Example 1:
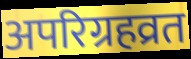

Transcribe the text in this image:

अपरिग्रहव्रत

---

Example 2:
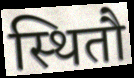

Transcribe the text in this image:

स्थितौ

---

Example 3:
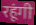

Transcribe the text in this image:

रहूंगी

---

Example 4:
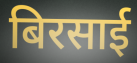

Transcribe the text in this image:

बिरसाई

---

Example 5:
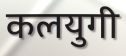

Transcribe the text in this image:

कलयुगी